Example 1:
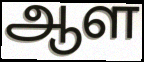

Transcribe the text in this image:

ஆள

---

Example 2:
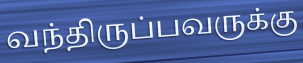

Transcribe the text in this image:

வந்திருப்பவருக்கு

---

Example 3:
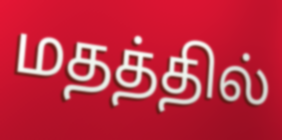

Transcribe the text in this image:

மதத்தில்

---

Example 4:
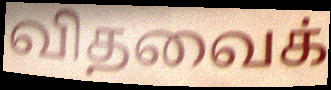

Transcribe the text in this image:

விதவைக்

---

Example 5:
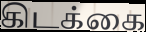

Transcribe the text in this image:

கிடக்கை